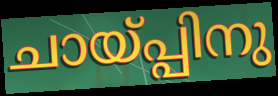
ചായ്പ്പിനു